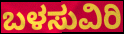
ಬಳಸುವಿರಿ